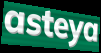
asteya